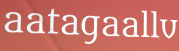
aatagaallu